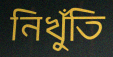
নিখুঁতি